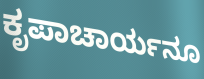
ಕೃಪಾಚಾರ್ಯನೂ